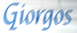
Giorgos